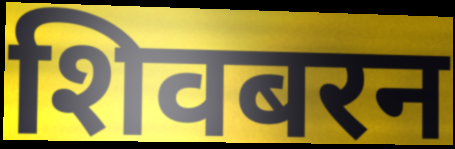
शिवबरन